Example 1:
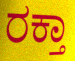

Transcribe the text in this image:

ರಕ್ತಾ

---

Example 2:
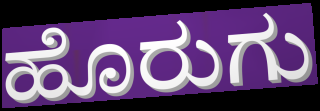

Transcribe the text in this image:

ಹೊರುಗು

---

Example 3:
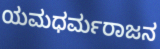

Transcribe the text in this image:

ಯಮಧರ್ಮರಾಜನ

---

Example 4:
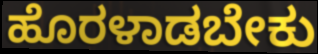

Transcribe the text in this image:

ಹೊರಳಾಡಬೇಕು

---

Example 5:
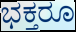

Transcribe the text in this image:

ಭಕ್ತರೂ